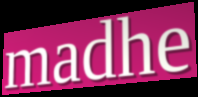
madhe